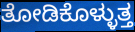
ತೋಡಿಕೊಳ್ಳುತ್ತ